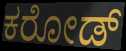
ಕರೋಡ್